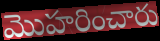
మొహరించారు